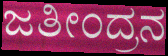
ಜತೀಂದ್ರನ